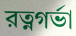
রত্নগর্ভা